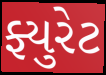
ફ્યુરેટ